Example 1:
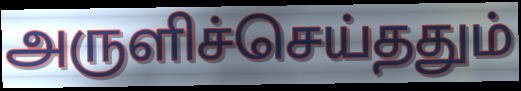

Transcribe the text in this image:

அருளிச்செய்ததும்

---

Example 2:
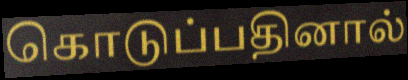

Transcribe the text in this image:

கொடுப்பதினால்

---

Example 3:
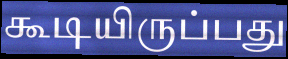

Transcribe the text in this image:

கூடியிருப்பது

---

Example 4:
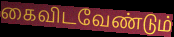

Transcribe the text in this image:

கைவிடவேண்டும்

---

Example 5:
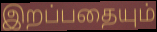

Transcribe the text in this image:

இறப்பதையும்